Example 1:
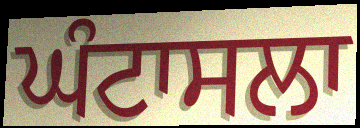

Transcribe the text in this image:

ਘੰਟਾਸਲਾ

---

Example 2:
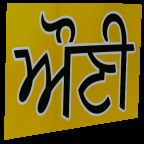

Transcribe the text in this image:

ਔਣੀ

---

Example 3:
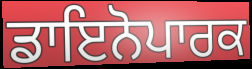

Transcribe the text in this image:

ਡਾਇਨੋਪਾਰਕ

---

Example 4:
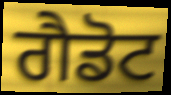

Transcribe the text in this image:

ਗੈਡੋਟ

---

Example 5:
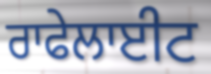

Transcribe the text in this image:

ਰਾਫੇਲਾਈਟ